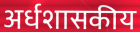
अर्धशासकीय